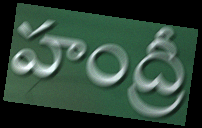
హంద్రీ